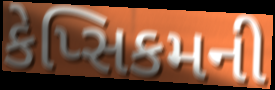
કેપ્સિકમની